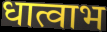
धात्वाभ